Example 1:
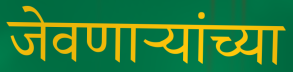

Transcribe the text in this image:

जेवणाऱ्यांच्या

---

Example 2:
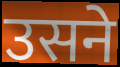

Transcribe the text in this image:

उसने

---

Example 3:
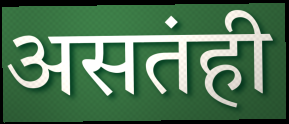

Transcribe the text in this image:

असतंही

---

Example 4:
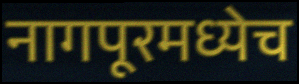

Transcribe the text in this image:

नागपूरमध्येच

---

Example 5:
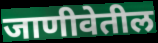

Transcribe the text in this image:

जाणीवेतील